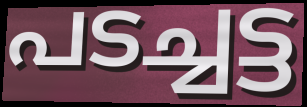
പടച്ചട്ട